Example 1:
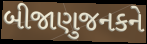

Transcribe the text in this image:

બીજાણુજનકને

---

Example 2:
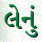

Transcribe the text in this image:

લેનું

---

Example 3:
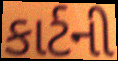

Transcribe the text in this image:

કાર્ટની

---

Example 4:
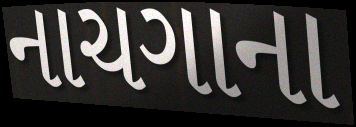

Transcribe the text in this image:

નાચગાના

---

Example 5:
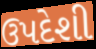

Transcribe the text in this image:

ઉપદેશી